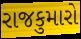
રાજકુમારો